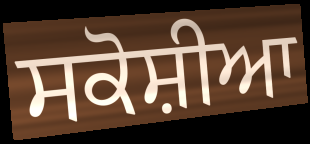
ਸਕੋਸ਼ੀਆ